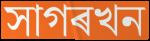
সাগৰখন